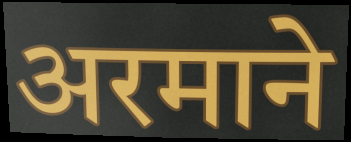
अरमाने